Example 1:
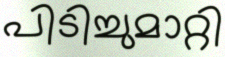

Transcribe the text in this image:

പിടിച്ചുമാറ്റി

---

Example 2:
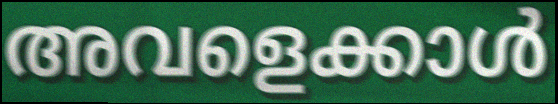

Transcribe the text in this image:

അവളെക്കാൾ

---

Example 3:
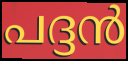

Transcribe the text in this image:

പദ്ദൻ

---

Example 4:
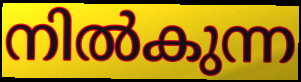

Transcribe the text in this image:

നിൽകുന്ന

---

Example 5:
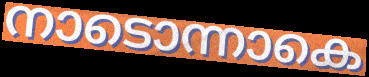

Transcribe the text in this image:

നാടൊന്നാകെ